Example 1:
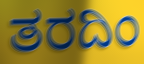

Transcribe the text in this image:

ತರದಿಂ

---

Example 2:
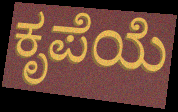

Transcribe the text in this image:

ಕೃಪೆಯೆ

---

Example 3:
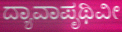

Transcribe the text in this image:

ದ್ಯಾವಾಪೃಥಿವೀ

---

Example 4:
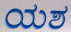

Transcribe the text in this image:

ಯಶ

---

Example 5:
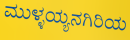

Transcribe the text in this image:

ಮುಳ್ಳಯ್ಯನಗಿರಿಯ